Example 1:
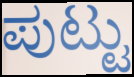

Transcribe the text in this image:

ಪುಟ್ಟು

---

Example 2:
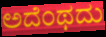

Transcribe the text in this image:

ಅದೆಂಥದು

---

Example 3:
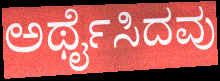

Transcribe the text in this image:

ಅರ್ಥೈಸಿದವು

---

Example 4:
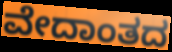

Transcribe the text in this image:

ವೇದಾಂತದ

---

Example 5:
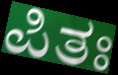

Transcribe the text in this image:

ಪಿತಃ